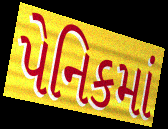
પેનિકમાં